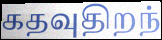
கதவுதிறந்